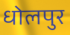
धोलपुर